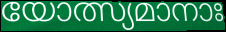
യോത്സ്യമാനാഃ